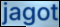
jagot